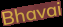
Bhavai